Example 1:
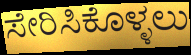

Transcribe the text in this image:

ಸೇರಿಸಿಕೊಳ್ಳಲು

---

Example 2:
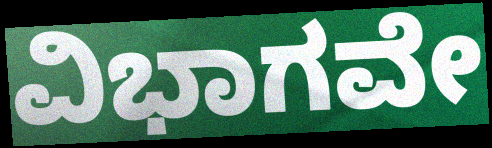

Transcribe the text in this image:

ವಿಭಾಗವೇ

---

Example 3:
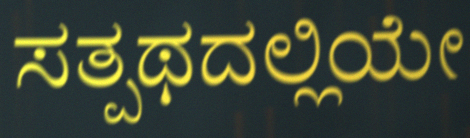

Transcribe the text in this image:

ಸತ್ಪಥದಲ್ಲಿಯೇ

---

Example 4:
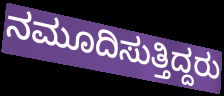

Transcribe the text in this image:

ನಮೂದಿಸುತ್ತಿದ್ದರು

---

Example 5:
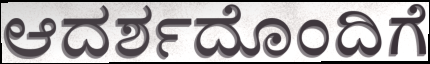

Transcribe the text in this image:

ಆದರ್ಶದೊಂದಿಗೆ